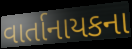
વાર્તાનાયકના